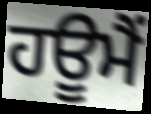
ਹਊਮੈਂ